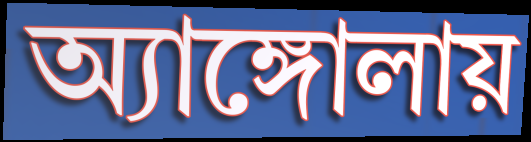
অ্যাঙ্গোলায়